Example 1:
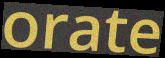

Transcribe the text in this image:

orate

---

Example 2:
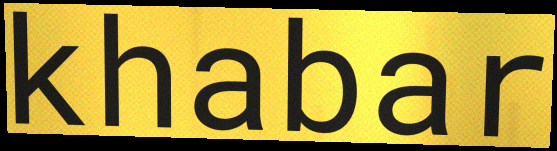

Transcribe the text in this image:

khabar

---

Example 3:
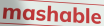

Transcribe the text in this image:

mashable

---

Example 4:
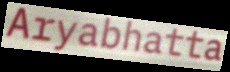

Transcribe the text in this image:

Aryabhatta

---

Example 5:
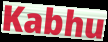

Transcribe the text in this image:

Kabhu